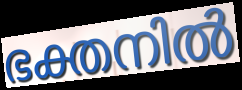
ഭക്തനിൽ